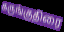
கருங்குதிரை